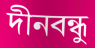
দীনবন্ধু